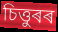
চিত্তুৰৰ